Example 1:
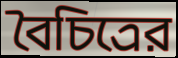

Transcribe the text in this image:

বৈচিত্রের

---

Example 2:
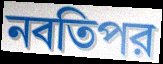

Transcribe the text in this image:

নবতিপর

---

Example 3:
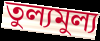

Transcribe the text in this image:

তুল্যমুল্য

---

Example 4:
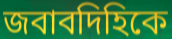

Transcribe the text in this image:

জবাবদিহিকে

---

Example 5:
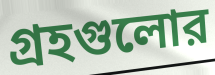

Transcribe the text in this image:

গ্রহগুলোর